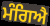
ਮੰਗਿਐ